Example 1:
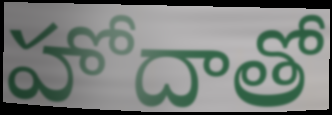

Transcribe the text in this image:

హోదాతో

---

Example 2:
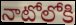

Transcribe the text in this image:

నాటోలోకి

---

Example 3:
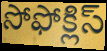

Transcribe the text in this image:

సోఫోక్లిస్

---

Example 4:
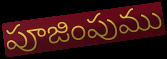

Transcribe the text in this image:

పూజింపుము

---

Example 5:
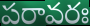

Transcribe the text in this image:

పరావరః